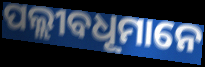
ପଲ୍ଲୀବଧୂମାନେ